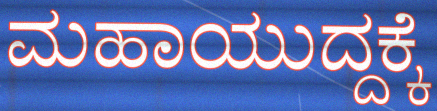
ಮಹಾಯುದ್ದಕ್ಕೆ